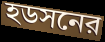
হডসনের